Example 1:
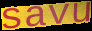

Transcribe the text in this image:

savu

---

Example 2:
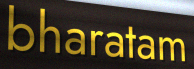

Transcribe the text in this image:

bharatam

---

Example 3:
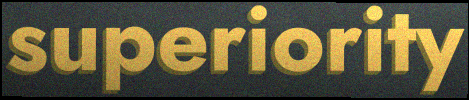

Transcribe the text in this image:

superiority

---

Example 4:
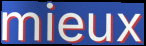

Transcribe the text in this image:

mieux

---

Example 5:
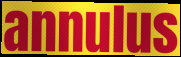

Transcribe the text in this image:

annulus